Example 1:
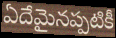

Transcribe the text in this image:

ఏదేమైనప్పటికీ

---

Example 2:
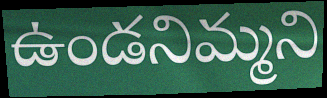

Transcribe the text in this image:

ఉండనిమ్మని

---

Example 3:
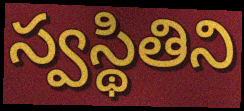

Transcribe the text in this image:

స్వస్థితిని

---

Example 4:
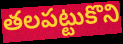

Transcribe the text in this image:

తలపట్టుకొని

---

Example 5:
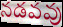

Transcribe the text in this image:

నడవవు